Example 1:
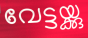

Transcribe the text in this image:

വേട്ടയ്ക്കു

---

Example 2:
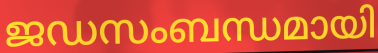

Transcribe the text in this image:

ജഡസംബന്ധമായി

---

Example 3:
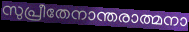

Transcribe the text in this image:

സുപ്രീതേനാന്തരാത്മനാ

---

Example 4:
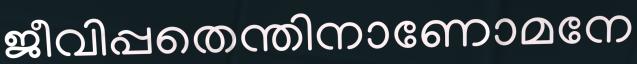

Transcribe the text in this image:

ജീവിപ്പതെന്തിനാണോമനേ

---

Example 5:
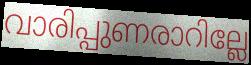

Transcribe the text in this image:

വാരിപ്പുണരാറില്ലേ